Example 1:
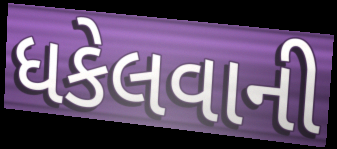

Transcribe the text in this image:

ધકેલવાની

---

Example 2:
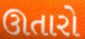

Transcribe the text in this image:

ઊતારો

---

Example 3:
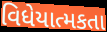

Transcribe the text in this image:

વિધેયાત્મકતા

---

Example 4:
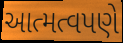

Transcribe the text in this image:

આત્મત્વપણે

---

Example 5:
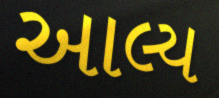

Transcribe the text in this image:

આલ્ય